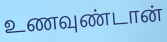
உணவுண்டான்